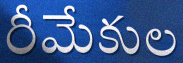
రీమేకుల